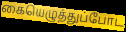
கையெழுத்துப்போட